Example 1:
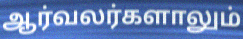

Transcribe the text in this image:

ஆர்வலர்களாலும்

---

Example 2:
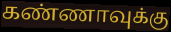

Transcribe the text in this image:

கண்ணாவுக்கு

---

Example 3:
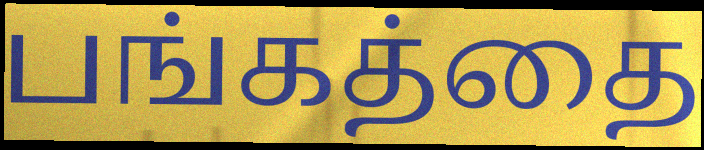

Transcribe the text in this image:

பங்கத்தை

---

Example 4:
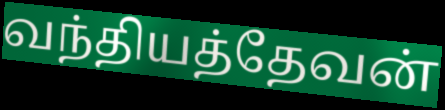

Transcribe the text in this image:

வந்தியத்தேவன்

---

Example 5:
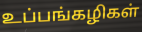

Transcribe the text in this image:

உப்பங்கழிகள்